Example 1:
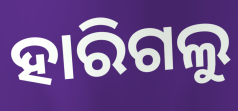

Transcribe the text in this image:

ହାରିଗଲୁ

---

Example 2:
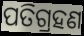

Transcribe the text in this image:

ପତିଗ୍ରହଣ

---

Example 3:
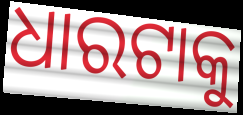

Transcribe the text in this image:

ଧାରଟାକୁ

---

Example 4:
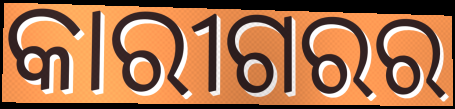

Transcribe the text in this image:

କାରୀଗରର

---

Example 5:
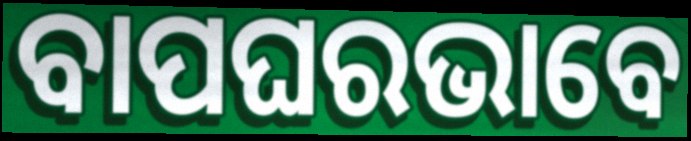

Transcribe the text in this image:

ବାପଘରଭାବେ